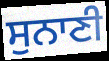
ਸੁਨਾਣੀ